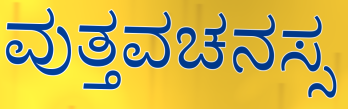
ವುತ್ತವಚನಸ್ಸ